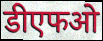
डीएफओ